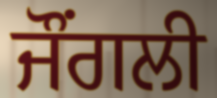
ਜੌਂਗਲੀ